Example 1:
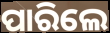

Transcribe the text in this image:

ପାରିଲେ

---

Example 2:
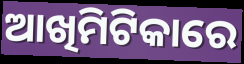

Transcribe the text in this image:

ଆଖିମିଟିକାରେ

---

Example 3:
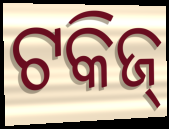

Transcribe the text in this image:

ଟକିଜ୍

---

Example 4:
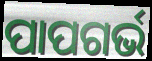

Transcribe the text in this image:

ପାପଗର୍ଭ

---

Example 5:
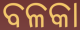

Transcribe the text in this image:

ବଳକା